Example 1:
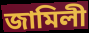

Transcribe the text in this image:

জামিলী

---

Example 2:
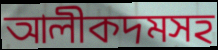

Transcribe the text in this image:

আলীকদমসহ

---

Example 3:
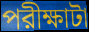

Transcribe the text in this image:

পরীক্ষাটা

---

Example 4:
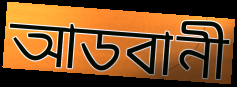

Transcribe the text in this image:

আডবানী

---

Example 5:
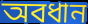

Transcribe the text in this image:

অবধান